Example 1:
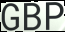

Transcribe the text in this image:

GBP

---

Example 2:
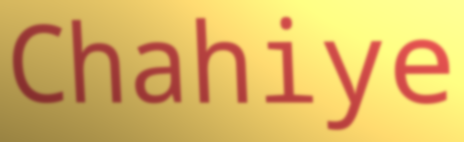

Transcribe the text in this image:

Chahiye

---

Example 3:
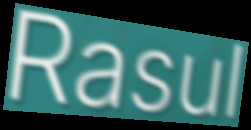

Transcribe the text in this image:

Rasul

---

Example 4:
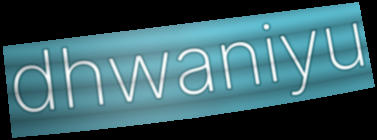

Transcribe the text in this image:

dhwaniyu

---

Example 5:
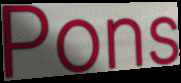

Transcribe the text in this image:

Pons